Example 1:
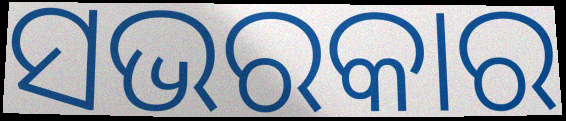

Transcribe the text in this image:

ସଭରକାର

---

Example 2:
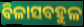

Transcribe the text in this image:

ବିଳାସବହୁଳ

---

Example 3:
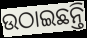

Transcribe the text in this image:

ଉଠାଇଛନ୍ତି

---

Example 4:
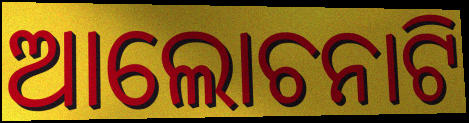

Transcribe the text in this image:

ଆଲୋଚନାଟି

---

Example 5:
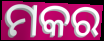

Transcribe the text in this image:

ମକର